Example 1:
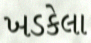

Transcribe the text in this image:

ખડકેલા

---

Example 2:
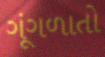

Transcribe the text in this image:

ગૂંગળાતો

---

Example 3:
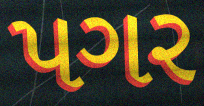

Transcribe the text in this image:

પગર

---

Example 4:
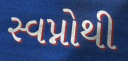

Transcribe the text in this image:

સ્વપ્નોથી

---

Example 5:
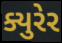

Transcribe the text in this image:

ક્યુરેર